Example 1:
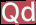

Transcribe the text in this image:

Qd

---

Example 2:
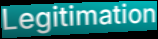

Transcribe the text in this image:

Legitimation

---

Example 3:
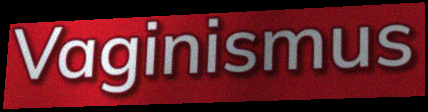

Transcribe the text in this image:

Vaginismus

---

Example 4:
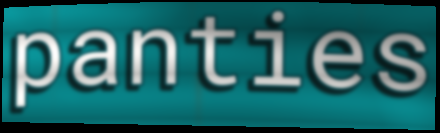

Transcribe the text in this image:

panties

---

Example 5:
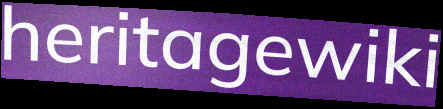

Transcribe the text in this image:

heritagewiki